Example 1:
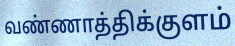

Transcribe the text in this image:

வண்ணாத்திக்குளம்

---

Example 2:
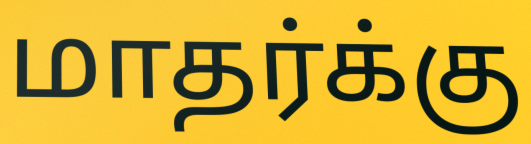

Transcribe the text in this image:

மாதர்க்கு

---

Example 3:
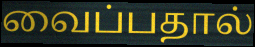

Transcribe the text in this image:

வைப்பதால்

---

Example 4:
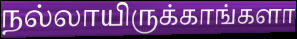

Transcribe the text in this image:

நல்லாயிருக்காங்களா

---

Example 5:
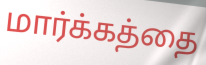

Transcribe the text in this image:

மார்க்கத்தை